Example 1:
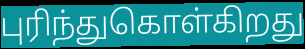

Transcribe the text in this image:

புரிந்துகொள்கிறது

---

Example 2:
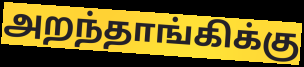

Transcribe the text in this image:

அறந்தாங்கிக்கு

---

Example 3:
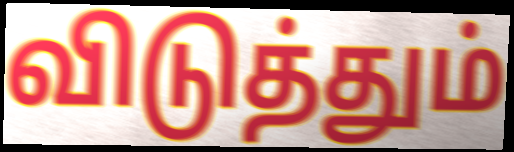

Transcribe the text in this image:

விடுத்தும்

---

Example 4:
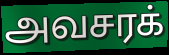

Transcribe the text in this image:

அவசரக்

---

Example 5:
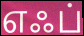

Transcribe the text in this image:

எஃப்